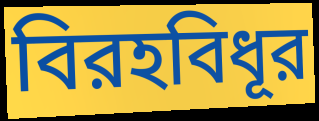
বিরহবিধূর